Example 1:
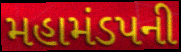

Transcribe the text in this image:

મહામંડપની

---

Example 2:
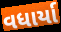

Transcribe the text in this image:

વધાર્યા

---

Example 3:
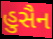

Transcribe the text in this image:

હુસૈન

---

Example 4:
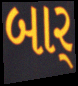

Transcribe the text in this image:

બાર્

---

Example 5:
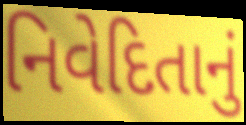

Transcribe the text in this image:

નિવેદિતાનું